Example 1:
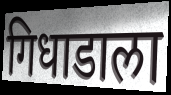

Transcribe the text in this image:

गिधाडाला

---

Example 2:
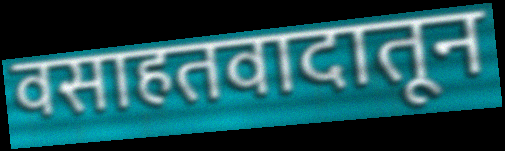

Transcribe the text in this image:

वसाहतवादातून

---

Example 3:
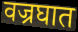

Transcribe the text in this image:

वज्रघात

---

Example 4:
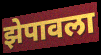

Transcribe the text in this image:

झेपावला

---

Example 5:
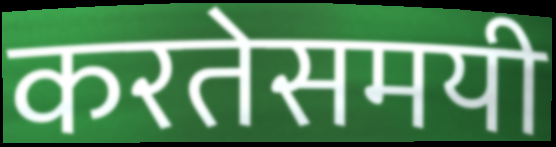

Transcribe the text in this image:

करतेसमयी